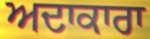
ਅਦਾਕਾਰਾ